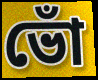
ভোঁ